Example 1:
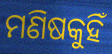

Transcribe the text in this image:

ମଣିଷକୁହିଁ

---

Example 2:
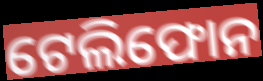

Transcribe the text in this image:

ଟେଲିଫୋନ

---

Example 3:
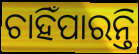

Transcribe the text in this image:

ଚାହିଁପାରନ୍ତି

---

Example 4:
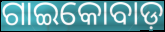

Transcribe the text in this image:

ଗାଇକୋବାଡ଼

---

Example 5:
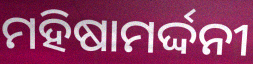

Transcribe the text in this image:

ମହିଷାମର୍ଦ୍ଦନୀ